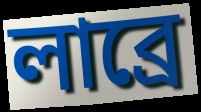
লাব্রে